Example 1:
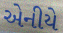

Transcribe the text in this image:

એનીયે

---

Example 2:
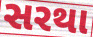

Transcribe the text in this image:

સરથા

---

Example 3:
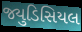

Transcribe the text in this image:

જ્યુડિસિયલ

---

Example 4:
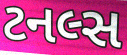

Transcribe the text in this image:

ટનલ્સ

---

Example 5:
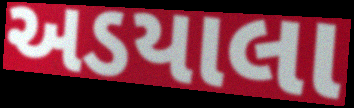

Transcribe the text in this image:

અડયાલા